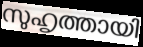
സുഹൃത്തായി